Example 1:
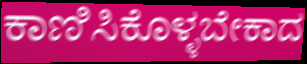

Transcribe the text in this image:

ಕಾಣಿಸಿಕೊಳ್ಳಬೇಕಾದ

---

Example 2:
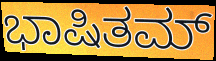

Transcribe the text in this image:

ಭಾಷಿತಮ್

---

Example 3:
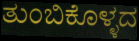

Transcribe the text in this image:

ತುಂಬಿಕೊಳ್ಳದ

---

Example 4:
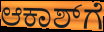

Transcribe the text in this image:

ಆಕಾಶ್‌ಗೆ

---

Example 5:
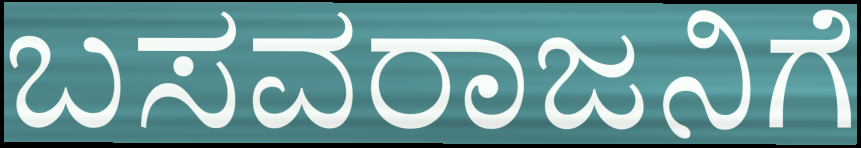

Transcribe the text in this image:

ಬಸವರಾಜನಿಗೆ